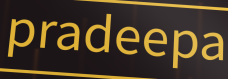
pradeepa